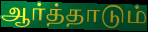
ஆர்த்தாடும்